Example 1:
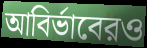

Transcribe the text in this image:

আবির্ভাবেরও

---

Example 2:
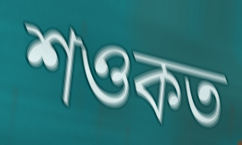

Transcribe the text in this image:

শওকত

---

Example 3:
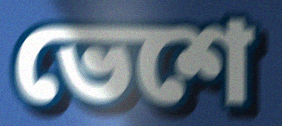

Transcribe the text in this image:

ভেশে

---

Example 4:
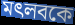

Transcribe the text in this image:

মৎলবকে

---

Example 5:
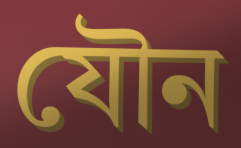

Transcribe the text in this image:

যৌন